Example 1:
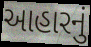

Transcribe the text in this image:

આહારનું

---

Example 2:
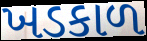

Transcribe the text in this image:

ખડકાળ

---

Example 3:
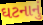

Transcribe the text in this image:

ઘટનાનું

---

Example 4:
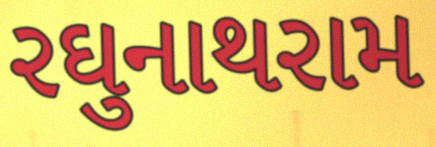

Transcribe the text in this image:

રઘુનાથરામ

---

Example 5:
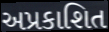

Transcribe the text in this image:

અપ્રકાશિત